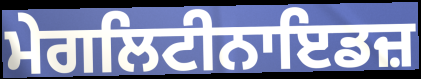
ਮੇਗਲਿਟੀਨਾਇਡਜ਼